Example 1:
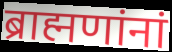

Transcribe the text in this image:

ब्राह्मणांनां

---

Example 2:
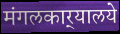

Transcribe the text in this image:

मंगलकार्यालये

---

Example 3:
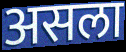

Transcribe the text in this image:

असला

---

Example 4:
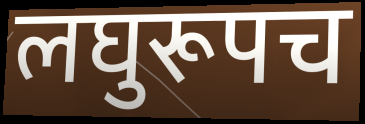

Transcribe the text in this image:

लघुरूपच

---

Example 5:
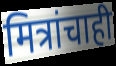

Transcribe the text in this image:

मित्रांचाही